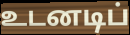
உடனடிப்